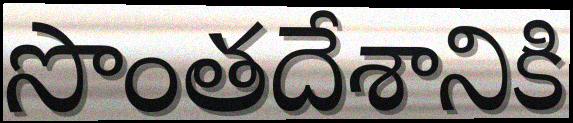
సొంతదేశానికి